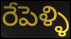
రేపెళ్ళి